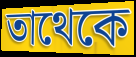
তাথেকে